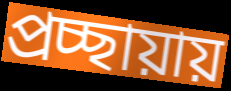
প্রচ্ছায়ায়